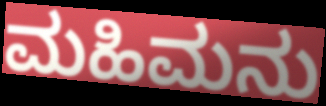
ಮಹಿಮನು